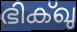
ഭിക്ഖു